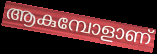
ആകുമ്പോളാണ്